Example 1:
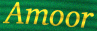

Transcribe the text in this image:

Amoor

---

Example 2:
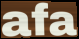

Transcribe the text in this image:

afa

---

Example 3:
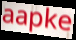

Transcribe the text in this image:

aapke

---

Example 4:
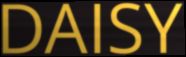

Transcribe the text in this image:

DAISY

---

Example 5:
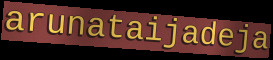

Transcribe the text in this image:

arunataijadeja